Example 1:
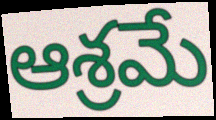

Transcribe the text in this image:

ఆశ్రమే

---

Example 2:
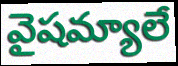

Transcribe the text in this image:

వైషమ్యాలే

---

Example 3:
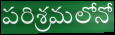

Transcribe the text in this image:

పరిశ్రమలోనో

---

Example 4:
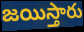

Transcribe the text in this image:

జయిస్తారు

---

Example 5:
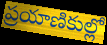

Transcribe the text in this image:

ప్రయాణికుల్లో